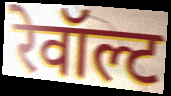
रेवॉल्ट